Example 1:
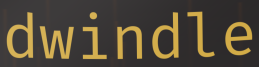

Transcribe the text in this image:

dwindle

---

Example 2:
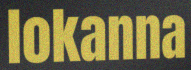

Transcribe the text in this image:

lokanna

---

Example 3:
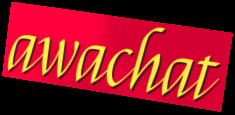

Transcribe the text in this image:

awachat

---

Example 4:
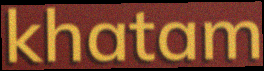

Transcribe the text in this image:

khatam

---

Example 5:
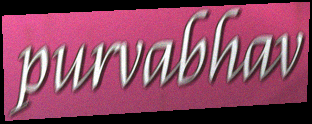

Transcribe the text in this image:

purvabhav